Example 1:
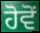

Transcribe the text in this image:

ਹੋਵੋਂ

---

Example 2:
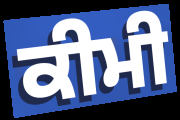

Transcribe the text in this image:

ਕੀਮੀ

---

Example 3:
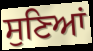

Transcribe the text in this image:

ਸੁਣਿਆਂ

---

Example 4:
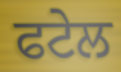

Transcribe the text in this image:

ਫਟੇਲ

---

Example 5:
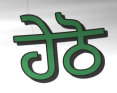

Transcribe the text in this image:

ਹੇਠੋ